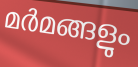
മർമങ്ങളും